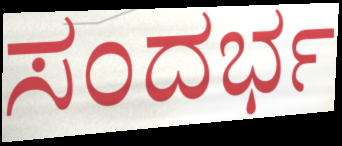
ಸಂದರ್ಭ